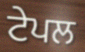
ਟੇਪਲ